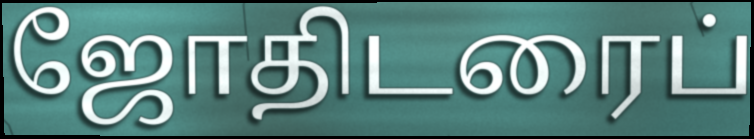
ஜோதிடரைப்